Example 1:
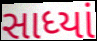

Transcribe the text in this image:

સાધ્યાં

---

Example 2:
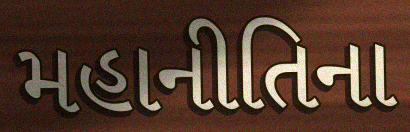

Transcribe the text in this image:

મહાનીતિના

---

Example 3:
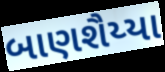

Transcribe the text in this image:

બાણશૈય્યા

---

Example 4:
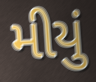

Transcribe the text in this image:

મીયું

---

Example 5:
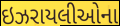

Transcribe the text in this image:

ઇઝરાયલીઓના